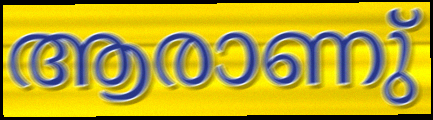
ആരാണു്